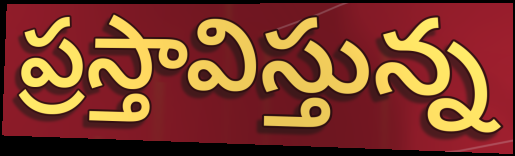
ప్రస్తావిస్తున్న